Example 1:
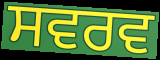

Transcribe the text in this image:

ਸਵਰਵ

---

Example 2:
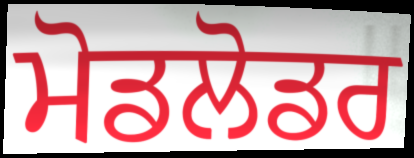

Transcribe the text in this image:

ਮੋਡਲੋਡਰ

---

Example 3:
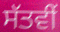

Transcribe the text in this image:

ਸੱਤਵੀਂ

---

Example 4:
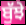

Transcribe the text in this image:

ਬੁੱਝੇ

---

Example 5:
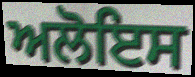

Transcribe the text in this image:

ਅਲੋਇਸ